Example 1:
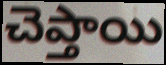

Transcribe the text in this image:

చెప్తాయి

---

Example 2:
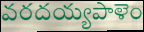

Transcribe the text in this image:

వరదయ్యపాళెం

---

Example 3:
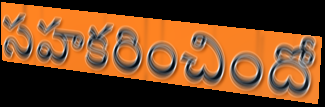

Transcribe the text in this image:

సహకరించిందో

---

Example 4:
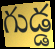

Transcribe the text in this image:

గుడ్డ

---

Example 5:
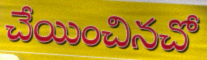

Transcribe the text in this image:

చేయించినచో